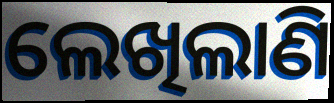
ଲେଖିଲାଣି